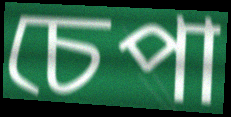
চেপা